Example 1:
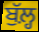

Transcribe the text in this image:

ਬੁੱਲ਼੍ਹ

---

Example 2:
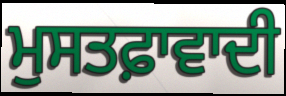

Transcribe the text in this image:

ਮੁਸਤਫ਼ਾਵਾਦੀ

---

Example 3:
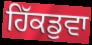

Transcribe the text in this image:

ਹਿੱਕਡੁਵਾ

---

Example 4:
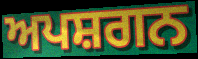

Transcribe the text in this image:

ਅਪਸ਼ਗਨ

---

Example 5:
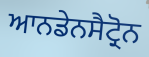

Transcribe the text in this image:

ਆਨਡੇਨਸੈਟ੍ਰੋਨ